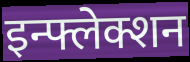
इन्फ्लेक्शन